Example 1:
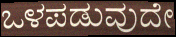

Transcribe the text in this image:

ಒಳಪಡುವುದೇ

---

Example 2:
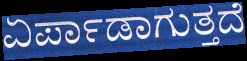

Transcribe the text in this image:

ಏರ್ಪಾಡಾಗುತ್ತದೆ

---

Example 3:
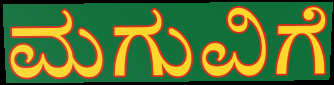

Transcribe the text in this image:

ಮಗುವಿಗೆ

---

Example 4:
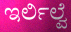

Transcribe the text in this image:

ಇರ್ಲಿಲ್ವೆ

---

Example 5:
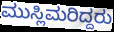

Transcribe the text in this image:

ಮುಸ್ಲಿಮರಿದ್ದರು